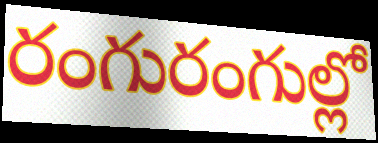
రంగురంగుల్లో